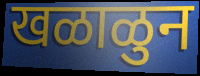
खळाळुन